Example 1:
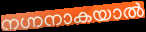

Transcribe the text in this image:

നഗ്നനാകയാൽ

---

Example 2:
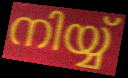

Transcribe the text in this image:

നിയ്യ്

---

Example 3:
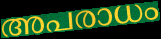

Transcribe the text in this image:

അപരാധം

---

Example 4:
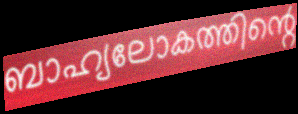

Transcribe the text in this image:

ബാഹ്യലോകത്തിന്റെ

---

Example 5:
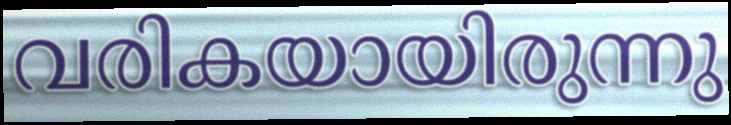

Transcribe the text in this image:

വരികയായിരുന്നു